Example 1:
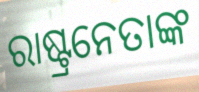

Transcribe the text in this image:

ରାଷ୍ଟ୍ରନେତାଙ୍କ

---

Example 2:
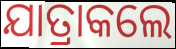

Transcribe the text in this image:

ଯାତ୍ରାକଲେ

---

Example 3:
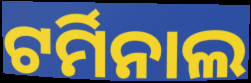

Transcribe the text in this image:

ଟର୍ମିନାଲ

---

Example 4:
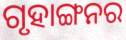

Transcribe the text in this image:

ଗୃହାଙ୍ଗନର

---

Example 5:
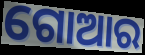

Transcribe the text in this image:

ଗୋଆର